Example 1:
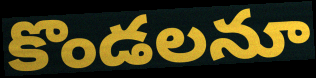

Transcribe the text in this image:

కొండలనూ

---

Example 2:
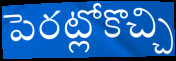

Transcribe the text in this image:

పెరట్లోకొచ్చి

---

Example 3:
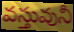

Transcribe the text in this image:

వస్తువునీ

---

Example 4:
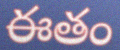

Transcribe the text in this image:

ఈతం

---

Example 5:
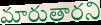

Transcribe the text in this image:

మారుతారని